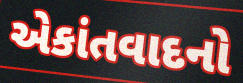
એકાંતવાદનો